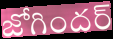
జోగిందర్